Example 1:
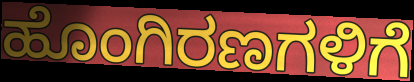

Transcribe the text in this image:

ಹೊಂಗಿರಣಗಳಿಗೆ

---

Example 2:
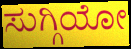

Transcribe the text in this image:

ಸುಗ್ಗಿಯೋ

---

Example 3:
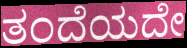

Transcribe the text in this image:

ತಂದೆಯದೇ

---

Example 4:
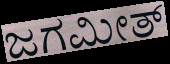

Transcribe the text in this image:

ಜಗಮೀತ್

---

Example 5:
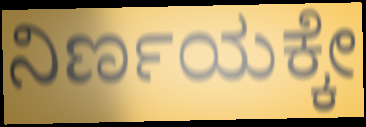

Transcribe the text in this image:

ನಿರ್ಣಯಕ್ಕೇ